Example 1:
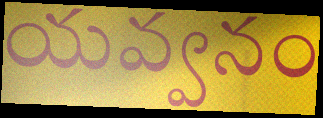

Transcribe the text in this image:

యవ్వనం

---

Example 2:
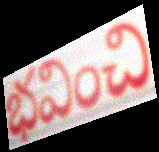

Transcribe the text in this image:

భవించి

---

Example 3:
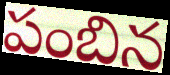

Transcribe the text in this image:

పంబిన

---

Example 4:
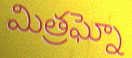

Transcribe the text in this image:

మిత్రఘ్నో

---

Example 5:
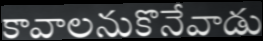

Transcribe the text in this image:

కావాలనుకొనేవాడు